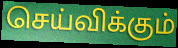
செய்விக்கும்